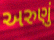
અરુણું